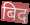
बिद